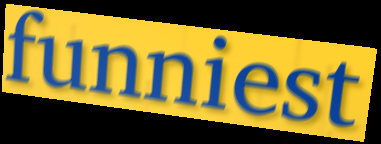
funniest